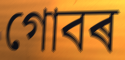
গোবৰ